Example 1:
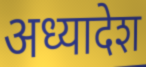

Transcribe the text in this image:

अध्यादेश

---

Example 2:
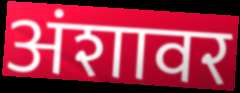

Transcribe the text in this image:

अंशावर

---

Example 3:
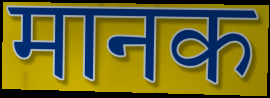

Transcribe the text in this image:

मानक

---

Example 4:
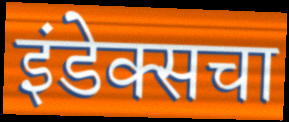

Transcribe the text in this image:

इंडेक्सचा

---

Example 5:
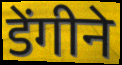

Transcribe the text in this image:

डेंगीने